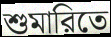
শুমারিতে